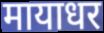
मायाधर